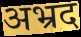
अभ्रद